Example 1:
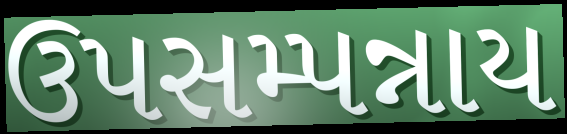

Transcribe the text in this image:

ઉપસમ્પન્નાય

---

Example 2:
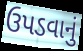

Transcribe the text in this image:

ઉપડવાનું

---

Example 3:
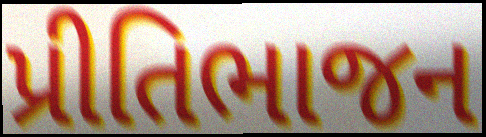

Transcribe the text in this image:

પ્રીતિભાજન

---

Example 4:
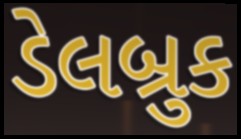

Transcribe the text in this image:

ડેલબ્રુક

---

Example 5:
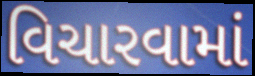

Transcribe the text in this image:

વિચારવામાં